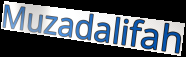
Muzadalifah